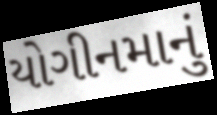
યોગીનમાનું